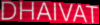
DHAIVAT